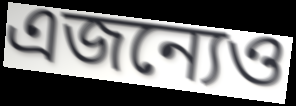
এজন্যেও